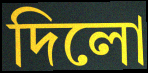
দিলো